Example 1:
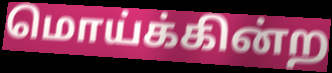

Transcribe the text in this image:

மொய்க்கின்ற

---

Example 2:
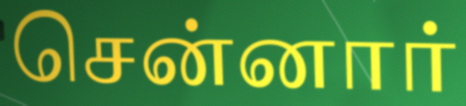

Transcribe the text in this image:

சென்னார்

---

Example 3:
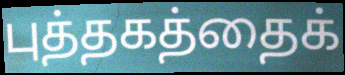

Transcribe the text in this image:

புத்தகத்தைக்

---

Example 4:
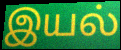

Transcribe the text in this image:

இயல்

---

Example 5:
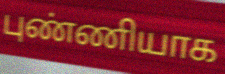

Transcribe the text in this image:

புண்ணியாக